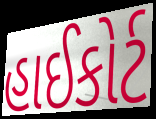
હાઈકોર્ટ